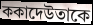
ককাদেউতাকে